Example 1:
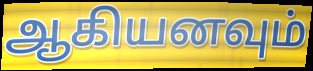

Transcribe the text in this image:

ஆகியனவும்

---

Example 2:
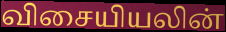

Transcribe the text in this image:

விசையியலின்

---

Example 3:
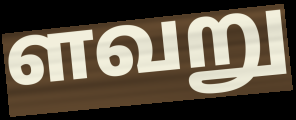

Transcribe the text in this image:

ளவறு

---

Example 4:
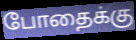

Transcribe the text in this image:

போதைக்கு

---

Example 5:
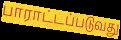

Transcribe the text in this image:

பாராட்டப்படுவது